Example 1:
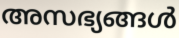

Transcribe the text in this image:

അസഭ്യങ്ങൾ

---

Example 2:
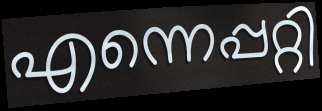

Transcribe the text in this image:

എന്നെപ്പറ്റി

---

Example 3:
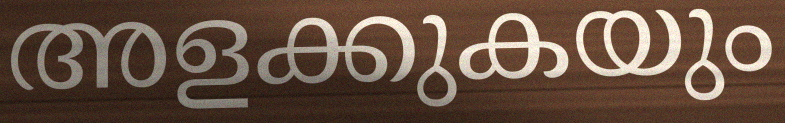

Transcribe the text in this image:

അളക്കുകയും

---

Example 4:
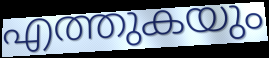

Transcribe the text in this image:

എത്തുകയും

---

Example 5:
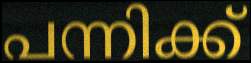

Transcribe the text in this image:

പന്നിക്ക്